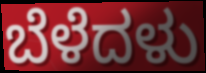
ಬೆಳೆದಳು